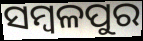
ସମ୍ବଳପୁର